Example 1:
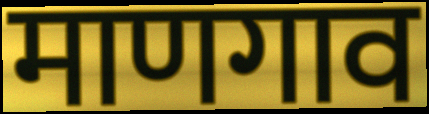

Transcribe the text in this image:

माणगाव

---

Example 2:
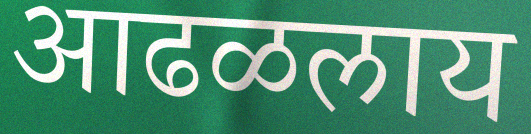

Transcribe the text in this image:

आढळलाय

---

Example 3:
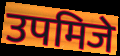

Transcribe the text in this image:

उपमिजे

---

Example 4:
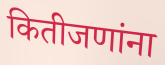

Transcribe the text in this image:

कितीजणांना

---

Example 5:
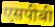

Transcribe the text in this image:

एसपीबी